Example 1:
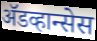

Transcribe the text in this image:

ॲडव्हान्सेस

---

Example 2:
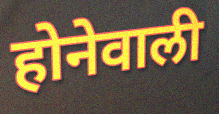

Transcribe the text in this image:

होनेवाली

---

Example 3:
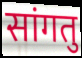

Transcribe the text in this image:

सांगतु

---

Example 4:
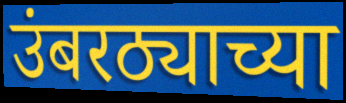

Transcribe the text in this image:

उंबरठ्याच्या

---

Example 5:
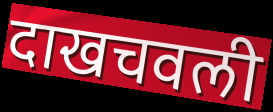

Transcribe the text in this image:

दाखचवली